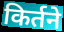
किर्तने